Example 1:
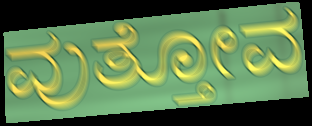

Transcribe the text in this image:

ವುತ್ತೋವ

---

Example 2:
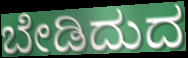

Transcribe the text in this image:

ಬೇಡಿದುದ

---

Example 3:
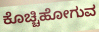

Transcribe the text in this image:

ಕೊಚ್ಚಿಹೋಗುವ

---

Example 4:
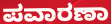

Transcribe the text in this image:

ಪವಾರಣಾ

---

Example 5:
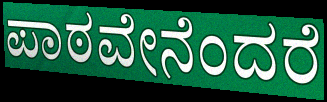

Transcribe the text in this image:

ಪಾಠವೇನೆಂದರೆ